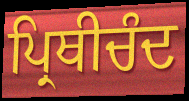
ਪ੍ਰਿਥੀਚੰਦ